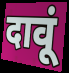
दावूं